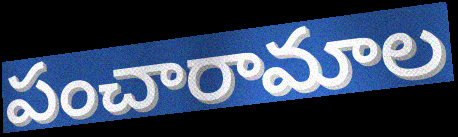
పంచారామాల